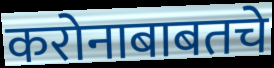
करोनाबाबतचे